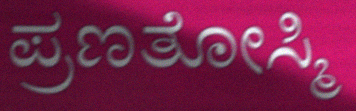
ಪ್ರಣತೋಸ್ಮಿ